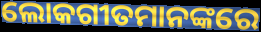
ଲୋକଗୀତମାନଙ୍କରେ